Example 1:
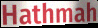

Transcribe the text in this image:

Hathmah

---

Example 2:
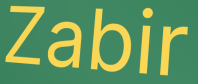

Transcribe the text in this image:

Zabir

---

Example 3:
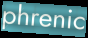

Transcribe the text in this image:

phrenic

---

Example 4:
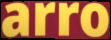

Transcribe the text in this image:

arro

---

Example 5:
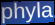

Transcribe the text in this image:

phyla